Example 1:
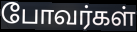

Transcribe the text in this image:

போவர்கள்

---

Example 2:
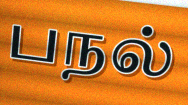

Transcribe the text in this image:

பநல்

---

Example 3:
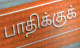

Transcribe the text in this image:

பாதிக்குக்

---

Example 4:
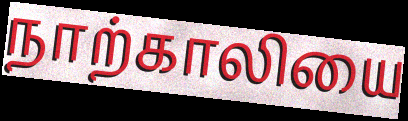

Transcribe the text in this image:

நாற்காலியை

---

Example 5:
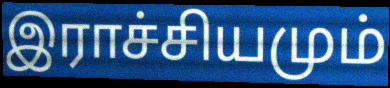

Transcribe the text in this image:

இராச்சியமும்